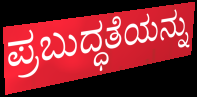
ಪ್ರಬುದ್ಧತೆಯನ್ನು